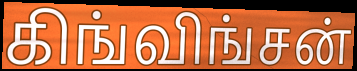
கிங்விங்சன்